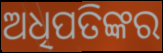
ଅଧିପତିଙ୍କର